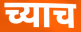
च्याच